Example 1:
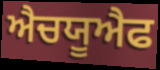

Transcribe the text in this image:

ਐਚਯੂਐਫ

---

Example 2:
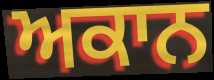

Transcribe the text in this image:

ਅਕਾਨ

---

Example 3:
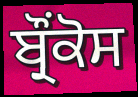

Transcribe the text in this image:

ਬ੍ਰੌਂਕੋਸ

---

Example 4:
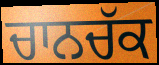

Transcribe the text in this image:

ਚਾਨਚੱਕ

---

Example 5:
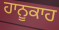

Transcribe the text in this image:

ਹਾਨੂਕਾਹ